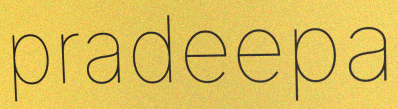
pradeepa